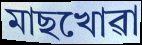
মাছখোৱা